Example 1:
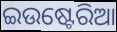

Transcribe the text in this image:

ଇଉଷ୍ଟେରିଆ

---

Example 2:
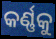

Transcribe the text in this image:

କର୍ଣ୍ଣକୁ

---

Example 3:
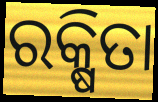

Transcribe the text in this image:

ରକ୍ଷିତା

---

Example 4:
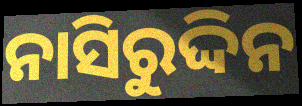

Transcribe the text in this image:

ନାସିରୁଦ୍ଦିନ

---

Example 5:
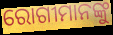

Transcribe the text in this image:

ରୋଗୀମାନଙ୍କୁ